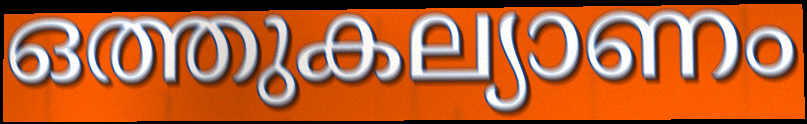
ഒത്തുകല്യാണം